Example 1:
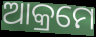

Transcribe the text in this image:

ଆକ୍ରମେ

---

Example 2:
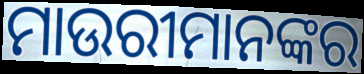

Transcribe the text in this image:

ମାଉରୀମାନଙ୍କର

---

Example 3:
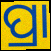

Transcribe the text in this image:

ପ୍ରା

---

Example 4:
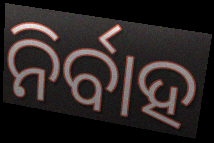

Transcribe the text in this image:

ନିର୍ବାହ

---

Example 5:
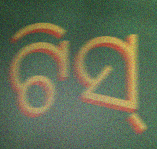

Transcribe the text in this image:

ଟିସ୍